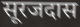
सूरजदास